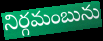
నిర్గమంబును